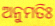
ଅନୁମତିଃ